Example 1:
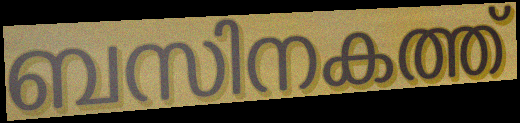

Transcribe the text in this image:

ബസിനകത്ത്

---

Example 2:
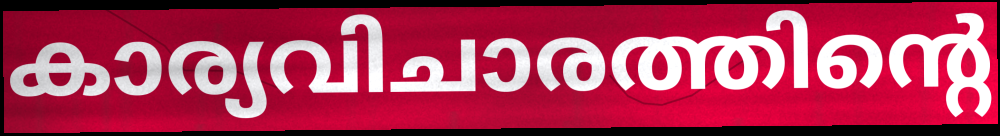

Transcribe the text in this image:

കാര്യവിചാരത്തിന്റെ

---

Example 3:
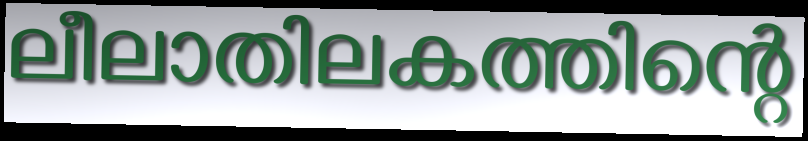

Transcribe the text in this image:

ലീലാതിലകത്തിന്റെ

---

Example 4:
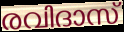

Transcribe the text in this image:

രവിദാസ്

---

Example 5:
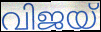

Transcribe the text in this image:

വിജയ്